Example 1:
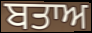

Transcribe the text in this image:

ਬਤਾਅ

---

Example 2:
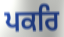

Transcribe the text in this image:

ਪਕਰਿ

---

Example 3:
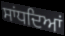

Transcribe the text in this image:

ਸਾਂਧਦਿਆਂ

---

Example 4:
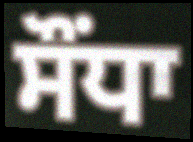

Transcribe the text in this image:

ਸੌਂਧਾ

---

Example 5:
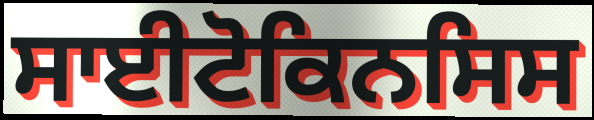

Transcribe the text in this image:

ਸਾਈਟੋਕਿਨਸਿਸ